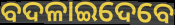
ବଦଳାଇଦେବେ